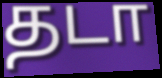
தடா